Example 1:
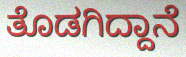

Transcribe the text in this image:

ತೊಡಗಿದ್ದಾನೆ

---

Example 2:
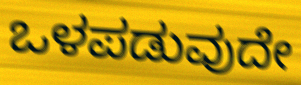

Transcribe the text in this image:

ಒಳಪಡುವುದೇ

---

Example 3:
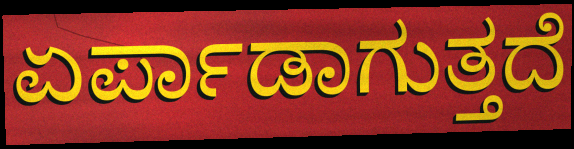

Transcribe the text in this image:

ಏರ್ಪಾಡಾಗುತ್ತದೆ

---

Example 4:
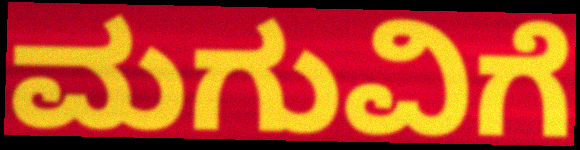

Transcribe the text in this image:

ಮಗುವಿಗೆ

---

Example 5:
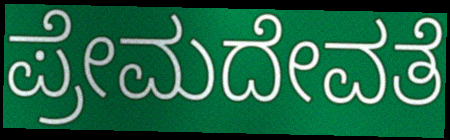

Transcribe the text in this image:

ಪ್ರೇಮದೇವತೆ